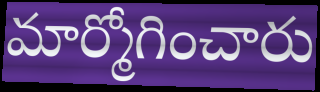
మార్మోగించారు